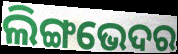
ଲିଙ୍ଗଭେଦର